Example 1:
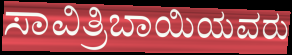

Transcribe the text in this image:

ಸಾವಿತ್ರಿಬಾಯಿಯವರು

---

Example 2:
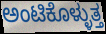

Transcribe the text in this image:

ಅಂಟಿಕೊಳ್ಳುತ್ತ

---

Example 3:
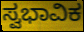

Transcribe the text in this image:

ಸ್ವಭಾವಿಕ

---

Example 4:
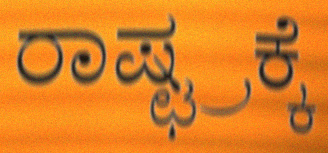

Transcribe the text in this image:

ರಾಷ್ಟ್ರಕ್ಕೆ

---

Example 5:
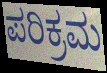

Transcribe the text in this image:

ಪರಿಕ್ರಮ